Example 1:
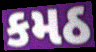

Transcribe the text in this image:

કમઠ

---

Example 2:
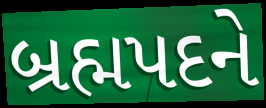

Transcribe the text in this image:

બ્રહ્મપદને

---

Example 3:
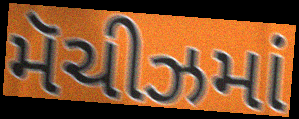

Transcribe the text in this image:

મૅચીઝમાં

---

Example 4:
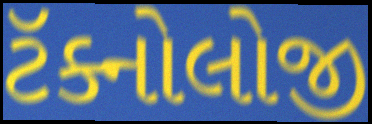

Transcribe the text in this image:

ટૅક્નોલોજી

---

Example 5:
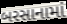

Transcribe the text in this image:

બરસાનામાં